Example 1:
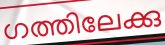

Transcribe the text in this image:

ഗത്തിലേക്കു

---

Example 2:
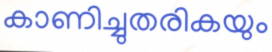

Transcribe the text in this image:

കാണിച്ചുതരികയും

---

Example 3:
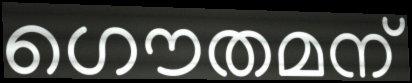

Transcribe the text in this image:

ഗൌതമന്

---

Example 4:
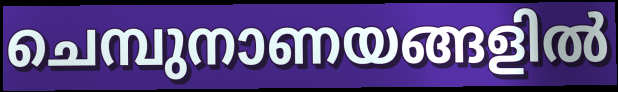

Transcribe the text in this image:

ചെമ്പുനാണയങ്ങളിൽ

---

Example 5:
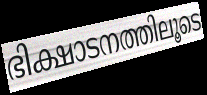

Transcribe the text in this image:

ഭിക്ഷാടനത്തിലൂടെ